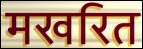
मखरित